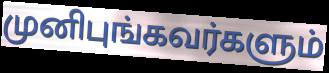
முனிபுங்கவர்களும்